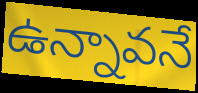
ఉన్నావనే